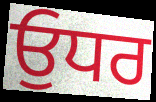
ਓੁਧਰ